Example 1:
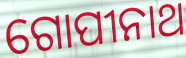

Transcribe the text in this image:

ଗୋପୀନାଥ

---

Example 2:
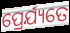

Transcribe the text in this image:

ପ୍ରେର୍ଯ୍ୟତେ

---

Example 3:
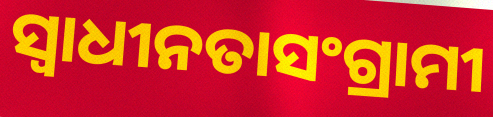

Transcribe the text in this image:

ସ୍ଵାଧୀନତାସଂଗ୍ରାମୀ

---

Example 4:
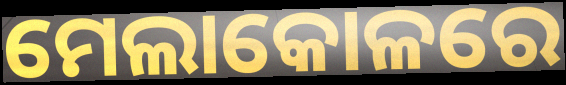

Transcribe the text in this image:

ମେଲାକୋଳରେ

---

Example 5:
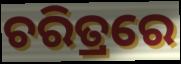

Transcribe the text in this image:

ଚରିତ୍ରରେ